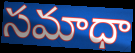
సమాధా